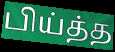
பிய்த்த